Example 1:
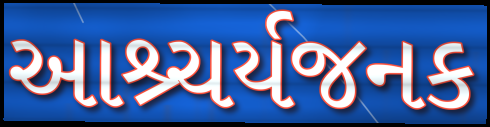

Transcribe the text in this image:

આશ્ર્ચર્યજનક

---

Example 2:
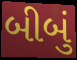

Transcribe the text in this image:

બીબું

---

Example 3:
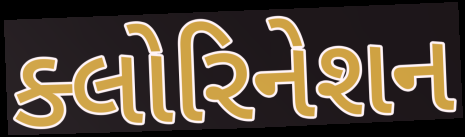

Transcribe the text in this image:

ક્લોરિનેશન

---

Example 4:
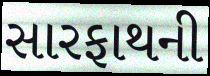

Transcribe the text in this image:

સારફાથની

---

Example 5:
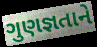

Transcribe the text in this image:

ગુણજ્ઞતાને